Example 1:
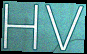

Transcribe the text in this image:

HV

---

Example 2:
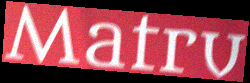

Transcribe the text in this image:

Matru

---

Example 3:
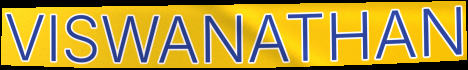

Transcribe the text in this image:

VISWANATHAN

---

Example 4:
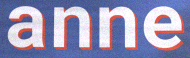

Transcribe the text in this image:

anne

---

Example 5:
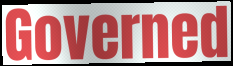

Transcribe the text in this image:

Governed